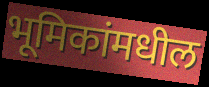
भूमिकांमधील